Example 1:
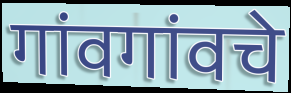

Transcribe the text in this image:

गांवगांवचे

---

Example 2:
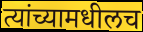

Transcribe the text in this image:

त्यांच्यामधीलच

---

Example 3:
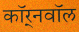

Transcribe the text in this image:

कॉर्नवॉल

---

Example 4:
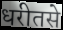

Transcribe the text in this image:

धरीतसे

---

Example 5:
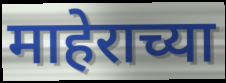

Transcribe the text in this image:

माहेराच्या